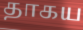
தாகய